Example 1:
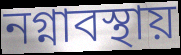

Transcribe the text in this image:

নগ্নাবস্থায়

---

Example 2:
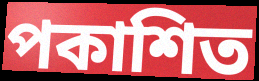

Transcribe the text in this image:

পকাশিত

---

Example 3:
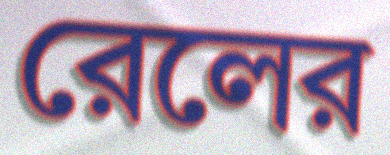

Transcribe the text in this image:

রেলের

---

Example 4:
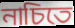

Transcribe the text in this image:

নাচিতে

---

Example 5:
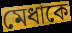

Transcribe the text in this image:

মেধাকে